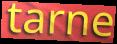
tarne